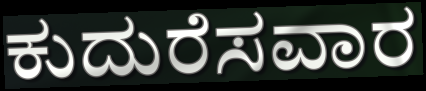
ಕುದುರೆಸವಾರ